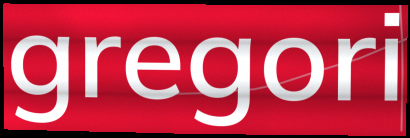
gregori